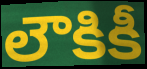
లౌకికీ